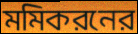
মমিকরনের